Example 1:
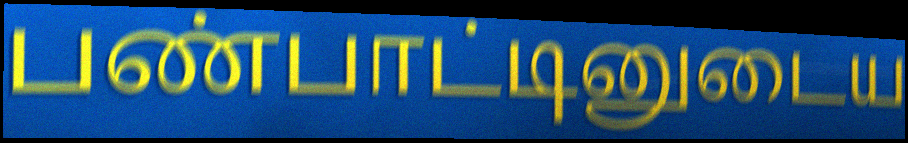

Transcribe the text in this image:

பண்பாட்டினுடைய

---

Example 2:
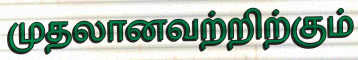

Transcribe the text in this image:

முதலானவற்றிற்கும்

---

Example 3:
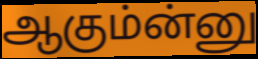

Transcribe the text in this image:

ஆகும்ன்னு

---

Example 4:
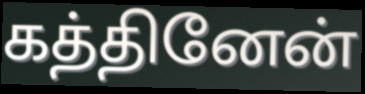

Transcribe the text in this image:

கத்தினேன்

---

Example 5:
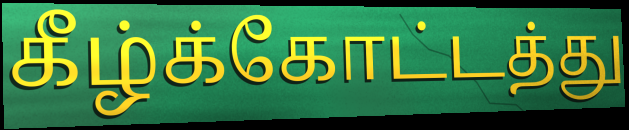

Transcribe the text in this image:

கீழ்க்கோட்டத்து